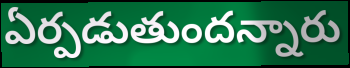
ఏర్పడుతుందన్నారు